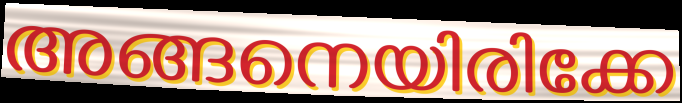
അങ്ങനെയിരിക്കേ